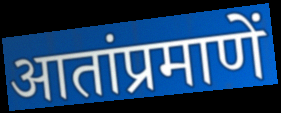
आतांप्रमाणें